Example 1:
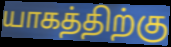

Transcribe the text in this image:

யாகத்திற்கு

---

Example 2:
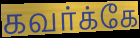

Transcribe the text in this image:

கவர்க்கே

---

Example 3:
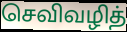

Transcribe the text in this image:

செவிவழித்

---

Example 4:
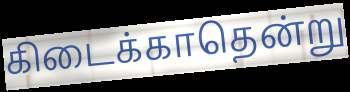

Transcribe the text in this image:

கிடைக்காதென்று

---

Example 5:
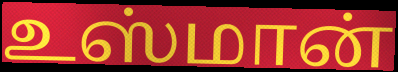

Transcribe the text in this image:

உஸ்மான்